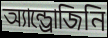
অ্যান্ড্রোজিনি